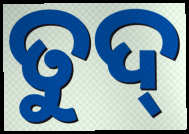
ତୁଦ୍